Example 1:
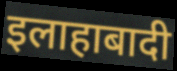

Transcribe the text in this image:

इलाहाबादी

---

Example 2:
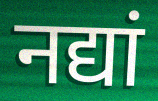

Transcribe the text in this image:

नद्यां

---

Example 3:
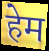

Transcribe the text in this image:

हेम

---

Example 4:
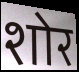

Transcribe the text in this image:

शोर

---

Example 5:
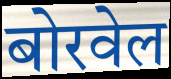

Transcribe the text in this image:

बोरवेल